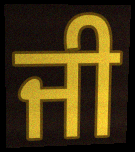
ਜੀ